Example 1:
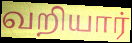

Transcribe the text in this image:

வறியார்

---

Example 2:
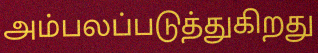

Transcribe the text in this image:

அம்பலப்படுத்துகிறது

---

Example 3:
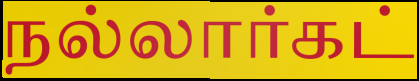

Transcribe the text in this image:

நல்லார்கட்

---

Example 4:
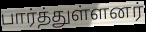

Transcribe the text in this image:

பார்த்துள்ளனர்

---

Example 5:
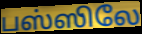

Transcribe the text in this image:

பஸ்ஸிலே